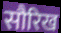
सौरिख